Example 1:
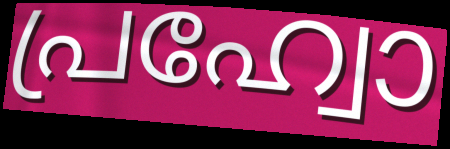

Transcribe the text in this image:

പ്രഹ്വോ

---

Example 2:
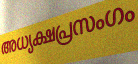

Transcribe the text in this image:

അധ്യക്ഷപ്രസംഗം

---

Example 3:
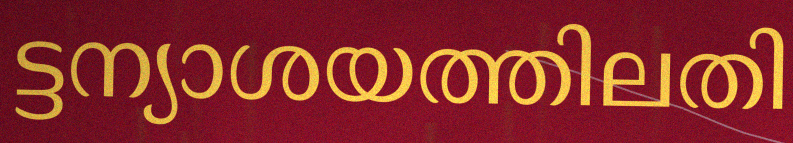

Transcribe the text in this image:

ട്ടന്യാശയത്തിലതി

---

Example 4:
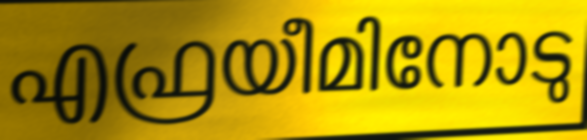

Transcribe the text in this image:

എഫ്രയീമിനോടു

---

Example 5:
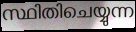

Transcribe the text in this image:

സ്ഥിതിചെയ്യുന്ന